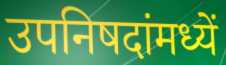
उपनिषदांमध्यें